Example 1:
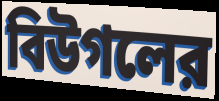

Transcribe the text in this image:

বিউগলের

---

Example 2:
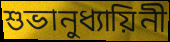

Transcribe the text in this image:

শুভানুধ্যায়িনী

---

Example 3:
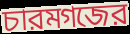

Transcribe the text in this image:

চারমগজের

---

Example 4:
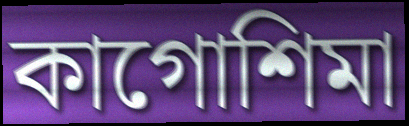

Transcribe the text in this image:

কাগোশিমা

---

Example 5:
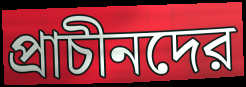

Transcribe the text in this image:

প্রাচীনদের